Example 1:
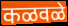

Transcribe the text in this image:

कळवळे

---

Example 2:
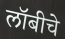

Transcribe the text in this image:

लॉबीचे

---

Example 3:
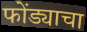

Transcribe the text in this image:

फोंड्याचा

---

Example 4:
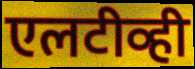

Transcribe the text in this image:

एलटीव्ही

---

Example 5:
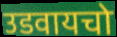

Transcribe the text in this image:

उडवायचो